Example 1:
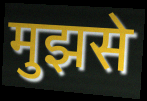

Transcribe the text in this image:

मुझसे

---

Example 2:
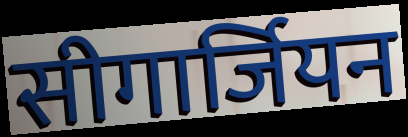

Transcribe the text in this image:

सीगार्जियन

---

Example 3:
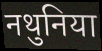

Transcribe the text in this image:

नथुनिया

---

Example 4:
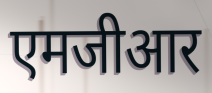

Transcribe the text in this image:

एमजीआर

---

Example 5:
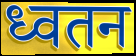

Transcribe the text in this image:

ध्वतन